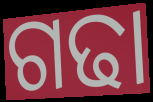
ଗଢା